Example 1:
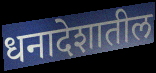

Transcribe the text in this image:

धनादेशातील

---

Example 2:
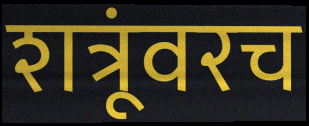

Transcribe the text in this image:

शत्रूंवरच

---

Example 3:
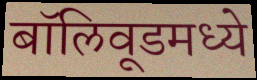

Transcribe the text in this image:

बॉलिवूडमध्ये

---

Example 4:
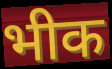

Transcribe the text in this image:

भीक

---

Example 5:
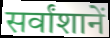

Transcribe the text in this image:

सर्वांशानें